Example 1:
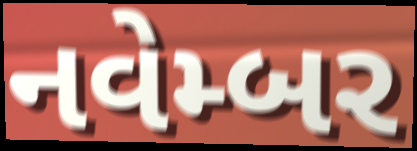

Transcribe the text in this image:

નવેમ્બર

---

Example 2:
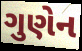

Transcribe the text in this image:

ગુણેન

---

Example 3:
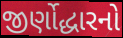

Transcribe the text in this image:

જીર્ણોદ્ધારનો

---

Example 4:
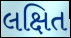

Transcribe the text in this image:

લક્ષિત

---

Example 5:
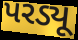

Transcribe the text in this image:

પરડ્યૂ